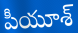
పీయూశ్